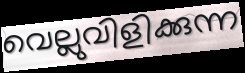
വെല്ലുവിളിക്കുന്ന